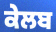
ਕੇਲਬ